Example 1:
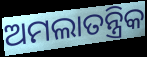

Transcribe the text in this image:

ଅମଲାତନ୍ତ୍ରିକ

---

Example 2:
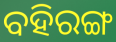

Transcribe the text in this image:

ବହିରଙ୍ଗ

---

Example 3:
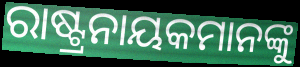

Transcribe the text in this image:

ରାଷ୍ଟ୍ରନାୟକମାନଙ୍କୁ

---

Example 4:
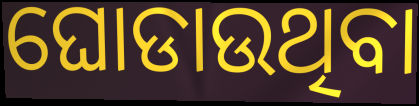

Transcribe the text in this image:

ଘୋଡାଉଥିବା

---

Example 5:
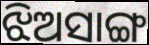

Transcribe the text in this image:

ଝିଅସାଙ୍ଗ